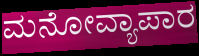
ಮನೋವ್ಯಾಪಾರ